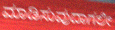
ಮಾಡಿಸುವುದಾಗಲೀ